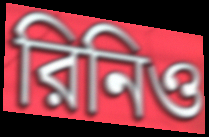
রিনিও